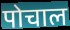
पोचाल